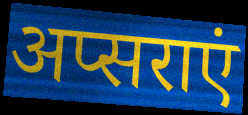
अप्सराएं